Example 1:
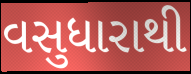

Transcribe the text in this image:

વસુધારાથી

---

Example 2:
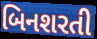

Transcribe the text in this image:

બિનશરતી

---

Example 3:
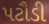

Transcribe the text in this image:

પટૌડી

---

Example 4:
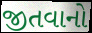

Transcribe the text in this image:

જીતવાનો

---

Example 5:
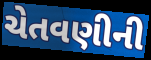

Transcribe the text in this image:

ચેતવણીની